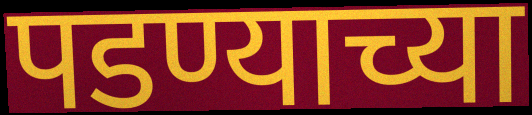
पडण्याच्या